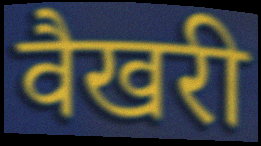
वैखरी